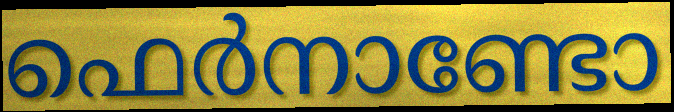
ഫെർനാണ്ടോ